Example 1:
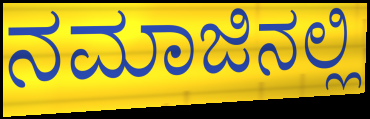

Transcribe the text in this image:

ನಮಾಜಿನಲ್ಲಿ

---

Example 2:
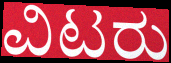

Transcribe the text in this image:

ವಿಟರು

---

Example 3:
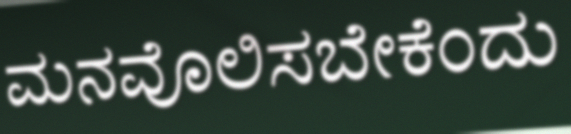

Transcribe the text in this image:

ಮನವೊಲಿಸಬೇಕೆಂದು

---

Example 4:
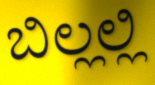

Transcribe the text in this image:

ಬಿಲ್ಲಲ್ಲಿ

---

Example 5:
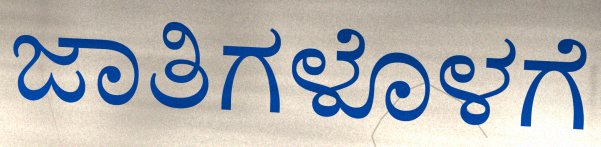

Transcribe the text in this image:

ಜಾತಿಗಳೊಳಗೆ